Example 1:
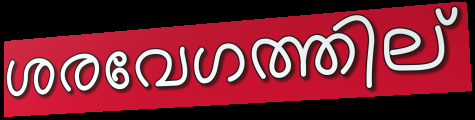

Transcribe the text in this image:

ശരവേഗത്തില്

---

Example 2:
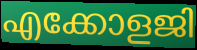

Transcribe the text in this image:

എക്കോളജി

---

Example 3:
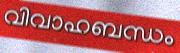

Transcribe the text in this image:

വിവാഹബന്ധം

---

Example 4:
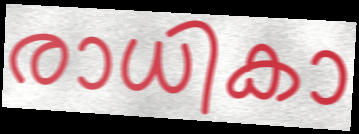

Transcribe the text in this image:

രാധികാ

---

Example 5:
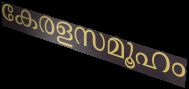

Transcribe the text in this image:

കേരളസമൂഹം